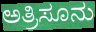
ಅತ್ರಿಸೂನು